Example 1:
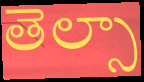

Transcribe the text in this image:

తెల్సా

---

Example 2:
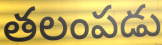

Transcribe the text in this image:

తలంపడు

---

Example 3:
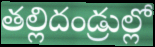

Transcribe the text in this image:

తల్లిదండ్రుల్లో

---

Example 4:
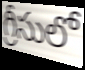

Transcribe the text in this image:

గ్రీసులో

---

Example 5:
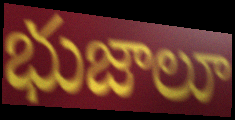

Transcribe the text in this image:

భుజాలూ